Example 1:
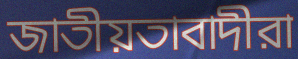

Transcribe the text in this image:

জাতীয়তাবাদীরা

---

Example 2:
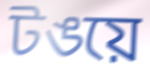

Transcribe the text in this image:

টঙয়ে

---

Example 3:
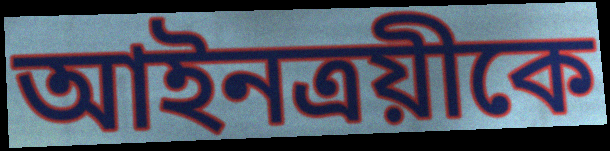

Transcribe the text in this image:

আইনত্রয়ীকে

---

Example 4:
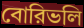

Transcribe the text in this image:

বোরিভলি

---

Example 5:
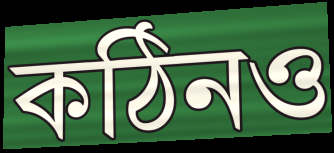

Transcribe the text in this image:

কঠিনও